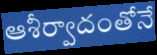
ఆశీర్వాదంతోనే